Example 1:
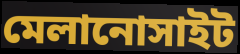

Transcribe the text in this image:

মেলানোসাইট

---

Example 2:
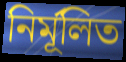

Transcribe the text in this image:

নির্মূলিত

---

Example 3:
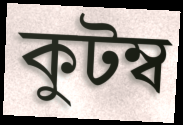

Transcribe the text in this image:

কুটম্ব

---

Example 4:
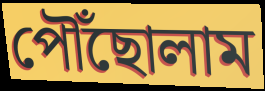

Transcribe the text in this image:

পৌঁছোলাম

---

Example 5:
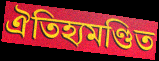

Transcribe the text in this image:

ঐতিহ্যমণ্ডিত